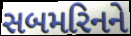
સબમરિનને